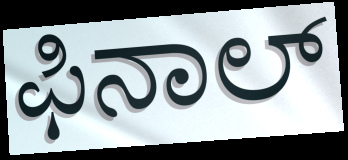
ಫಿನಾಲ್